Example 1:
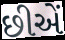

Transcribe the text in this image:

છીએં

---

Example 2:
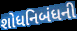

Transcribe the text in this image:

શોધનિબંધની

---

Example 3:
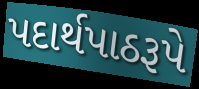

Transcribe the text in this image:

પદાર્થપાઠરૂપે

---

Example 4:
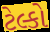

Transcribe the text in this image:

ટેલ્કો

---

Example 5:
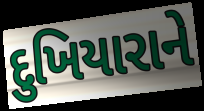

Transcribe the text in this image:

દુખિયારાને